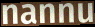
nannu